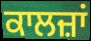
ਕਾਲਜ਼ਾਂ